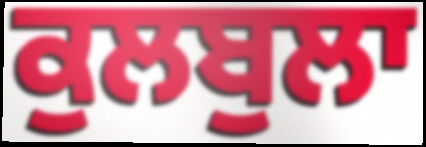
ਕੁਲਬੁਲਾ